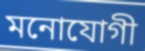
মনোযোগী